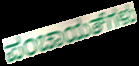
ಪಂಚಾಯತ್‌ಗಳು